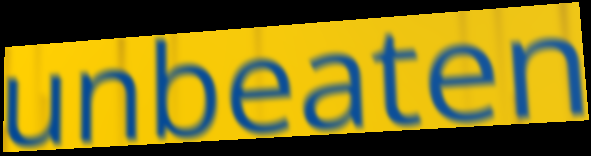
unbeaten